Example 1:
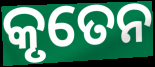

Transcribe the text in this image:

କୃତେନ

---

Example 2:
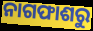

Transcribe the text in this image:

ନାଗଫାଶରୁ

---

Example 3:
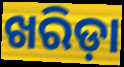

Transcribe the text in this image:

ଖରିଡ଼ା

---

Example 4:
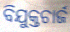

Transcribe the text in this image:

ବିଯୁକ୍ତଚାର୍ଜ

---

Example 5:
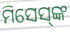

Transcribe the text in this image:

ମିସେସ୍‍ଙ୍କ